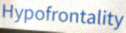
Hypofrontality